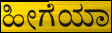
ಹೀಗೆಯಾ